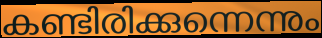
കണ്ടിരിക്കുന്നെന്നും